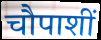
चौपाशीं